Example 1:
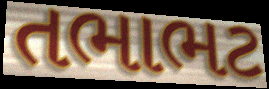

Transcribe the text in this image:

તભાભટ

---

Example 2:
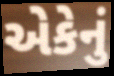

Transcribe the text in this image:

એકેનું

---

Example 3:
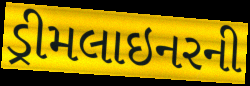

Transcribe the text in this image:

ડ્રીમલાઇનરની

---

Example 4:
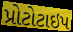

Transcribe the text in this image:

પ્રોટોટાઇપ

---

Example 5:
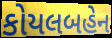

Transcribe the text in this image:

કોયલબહેન